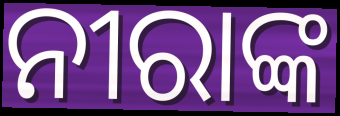
ନୀରାଙ୍କ